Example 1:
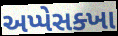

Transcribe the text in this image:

અપ્પેસક્ખા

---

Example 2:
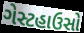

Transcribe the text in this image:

ગેસ્ટહાઉસો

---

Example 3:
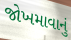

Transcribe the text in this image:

જોખમાવાનું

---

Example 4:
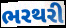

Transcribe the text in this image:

ભરથરી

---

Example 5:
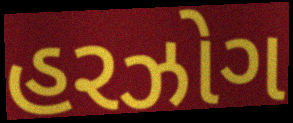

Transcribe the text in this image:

હરઝોગ